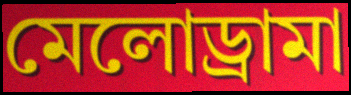
মেলোড্রামা